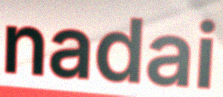
nadai